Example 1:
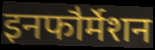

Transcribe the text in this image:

इनफौर्मेशन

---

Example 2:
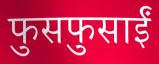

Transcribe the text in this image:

फुसफुसाईं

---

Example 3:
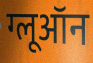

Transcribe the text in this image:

ग्लूऑन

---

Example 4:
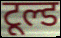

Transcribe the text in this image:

टूल्ड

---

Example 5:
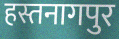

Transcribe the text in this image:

हस्तनागपुर